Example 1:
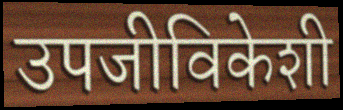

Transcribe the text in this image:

उपजीविकेशी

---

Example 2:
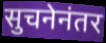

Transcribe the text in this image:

सुचनेनंतर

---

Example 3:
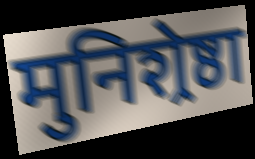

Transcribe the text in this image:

मुनिश्रेष्ठा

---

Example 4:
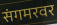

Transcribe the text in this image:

संगमरवर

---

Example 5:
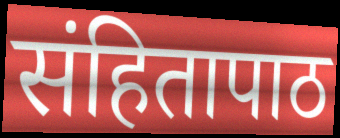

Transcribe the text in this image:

संहितापाठ